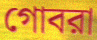
গোবরা